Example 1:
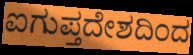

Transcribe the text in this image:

ಐಗುಪ್ತದೇಶದಿಂದ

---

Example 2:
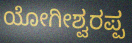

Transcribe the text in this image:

ಯೋಗೀಶ್ವರಪ್ಪ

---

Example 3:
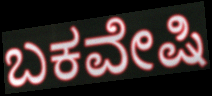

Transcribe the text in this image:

ಬಕವೇಷಿ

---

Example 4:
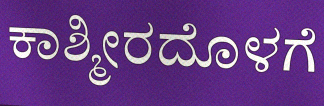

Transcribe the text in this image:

ಕಾಶ್ಮೀರದೊಳಗೆ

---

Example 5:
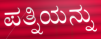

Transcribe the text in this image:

ಪತ್ನಿಯನ್ನು